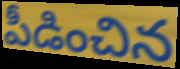
పీడించిన